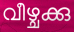
വീഴ്ചക്കു